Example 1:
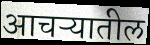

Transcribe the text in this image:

आचऱ्यातील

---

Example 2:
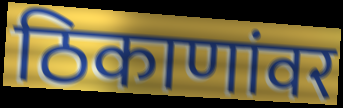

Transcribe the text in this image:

ठिकाणांवर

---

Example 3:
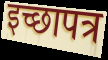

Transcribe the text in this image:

इच्छापत्र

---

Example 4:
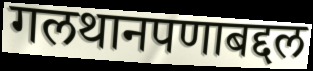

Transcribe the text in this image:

गलथानपणाबद्दल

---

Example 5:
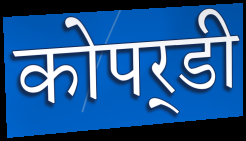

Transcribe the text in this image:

कोपर्डी